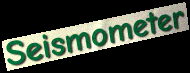
Seismometer